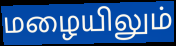
மழையிலும்